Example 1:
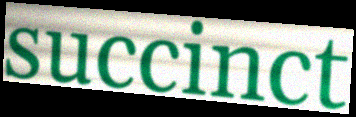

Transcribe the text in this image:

succinct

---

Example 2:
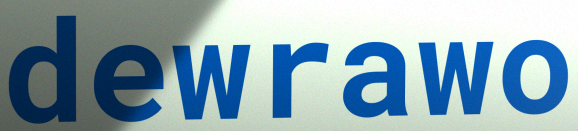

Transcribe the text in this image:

dewrawo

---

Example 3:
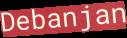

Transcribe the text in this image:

Debanjan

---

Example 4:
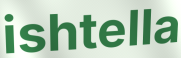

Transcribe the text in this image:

ishtella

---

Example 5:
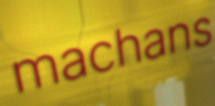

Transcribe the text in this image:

machans